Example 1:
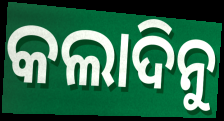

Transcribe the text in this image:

କଲାଦିନୁ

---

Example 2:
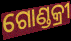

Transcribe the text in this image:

ଗୋଣ୍ଡକ୍ରୀ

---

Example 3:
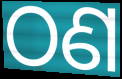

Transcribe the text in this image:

ଠଣ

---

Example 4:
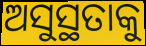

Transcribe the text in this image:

ଅସୁସ୍ଥତାକୁ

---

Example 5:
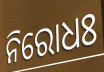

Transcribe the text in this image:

ନିରୋଧଃ